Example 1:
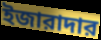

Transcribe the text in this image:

ইজারাদার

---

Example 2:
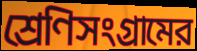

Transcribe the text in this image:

শ্রেণিসংগ্রামের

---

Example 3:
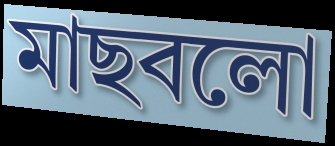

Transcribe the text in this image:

মাছবলো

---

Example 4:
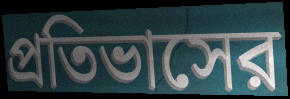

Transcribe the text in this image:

প্রতিভাসের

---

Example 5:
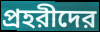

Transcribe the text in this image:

প্রহরীদের